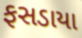
ફસડાયા